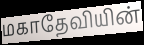
மகாதேவியின்